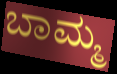
ಬಾಮ್ಮ